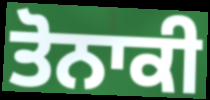
ਤੋਨਾਕੀ